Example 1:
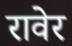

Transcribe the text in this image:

रावेर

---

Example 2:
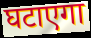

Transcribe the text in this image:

घटाएगा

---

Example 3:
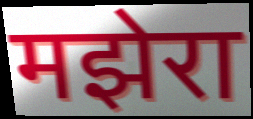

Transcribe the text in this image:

मझेरा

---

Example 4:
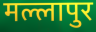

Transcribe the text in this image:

मल्लापुर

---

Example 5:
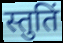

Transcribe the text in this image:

स्तुतिं